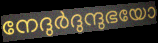
നേദുർദുന്ദുഭയോ